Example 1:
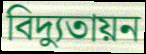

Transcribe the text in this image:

বিদ্যুতায়ন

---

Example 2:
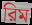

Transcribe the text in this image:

রিম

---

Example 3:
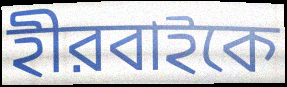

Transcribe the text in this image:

হীরবাইকে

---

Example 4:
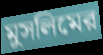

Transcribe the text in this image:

মুসলিমের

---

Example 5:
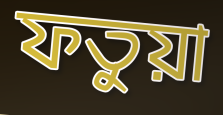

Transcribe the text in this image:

ফতুয়া